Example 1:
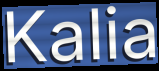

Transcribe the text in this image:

Kalia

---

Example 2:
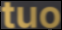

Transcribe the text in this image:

tuo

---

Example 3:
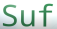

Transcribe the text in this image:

Suf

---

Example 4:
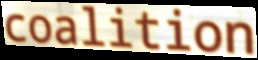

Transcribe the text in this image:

coalition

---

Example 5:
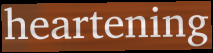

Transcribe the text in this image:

heartening